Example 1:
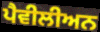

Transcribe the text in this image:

ਪੈਵੀਲੀਅਨ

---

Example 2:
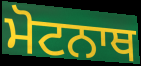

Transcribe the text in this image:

ਮੋਟਨਾਥ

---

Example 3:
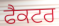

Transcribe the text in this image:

ਫੈਕਟਰ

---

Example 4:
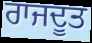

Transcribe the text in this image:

ਰਾਜਦੂਤ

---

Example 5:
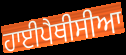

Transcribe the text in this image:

ਹਾਈਪੈਥੀਸੀਆ